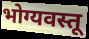
भोग्यवस्तू